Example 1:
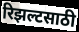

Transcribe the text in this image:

रिझल्टसाठी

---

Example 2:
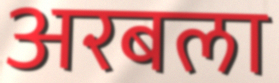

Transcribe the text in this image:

अरबला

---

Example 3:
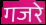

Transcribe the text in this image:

गजरे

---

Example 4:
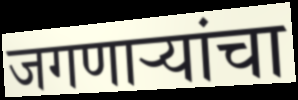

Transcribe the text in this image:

जगणाऱ्यांचा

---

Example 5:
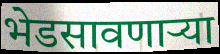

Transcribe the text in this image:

भेडसावणाऱ्या